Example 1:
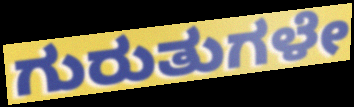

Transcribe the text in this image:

ಗುರುತುಗಳೇ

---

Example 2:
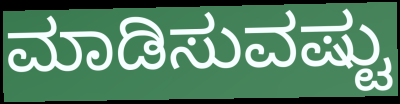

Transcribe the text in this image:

ಮಾಡಿಸುವಷ್ಟು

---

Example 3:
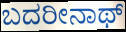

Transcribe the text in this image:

ಬದರೀನಾಥ್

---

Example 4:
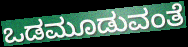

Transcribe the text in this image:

ಒಡಮೂಡುವಂತೆ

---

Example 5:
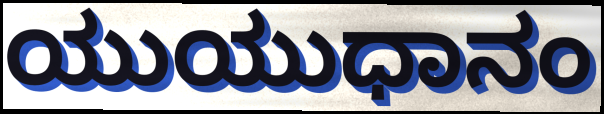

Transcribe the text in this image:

ಯುಯುಧಾನಂ